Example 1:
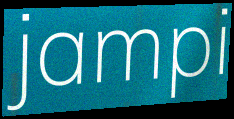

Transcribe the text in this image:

jampi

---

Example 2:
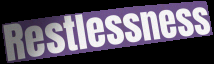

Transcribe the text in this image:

Restlessness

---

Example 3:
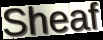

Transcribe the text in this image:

Sheaf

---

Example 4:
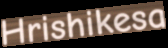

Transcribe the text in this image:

Hrishikesa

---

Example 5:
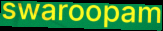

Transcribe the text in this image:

swaroopam